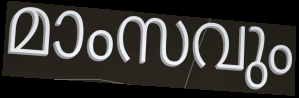
മാംസവും